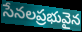
సేనలప్రభువైన